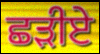
ਛੜੀਏ